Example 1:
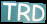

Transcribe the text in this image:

TRD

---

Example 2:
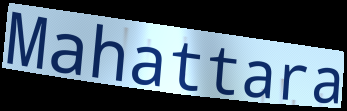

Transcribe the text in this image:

Mahattara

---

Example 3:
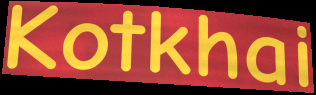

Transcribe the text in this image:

Kotkhai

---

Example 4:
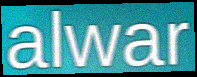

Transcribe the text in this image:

alwar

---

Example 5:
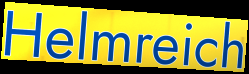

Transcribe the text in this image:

Helmreich